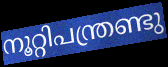
നൂറ്റിപന്ത്രണ്ടു